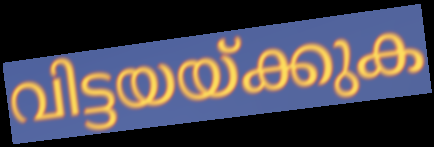
വിട്ടയയ്ക്കുക